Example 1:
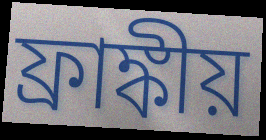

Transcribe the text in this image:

ফ্রাঙ্কীয়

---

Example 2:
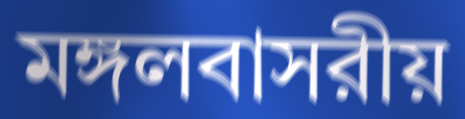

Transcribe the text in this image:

মঙ্গলবাসরীয়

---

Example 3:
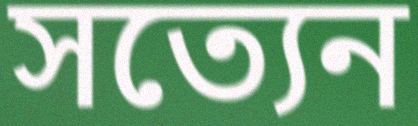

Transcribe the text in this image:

সত্যেন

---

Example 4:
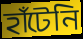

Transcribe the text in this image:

হাঁটেনি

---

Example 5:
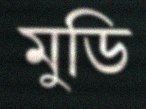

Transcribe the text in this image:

মুডি